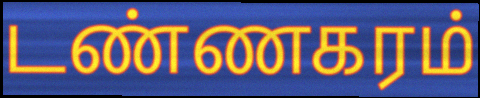
டண்ணகரம்